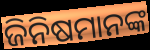
ଜିନିଷମାନଙ୍କ